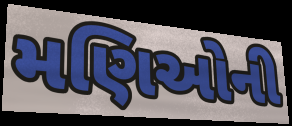
મણિઓની